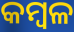
କମ୍ବଳ